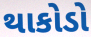
થાકોડો